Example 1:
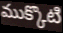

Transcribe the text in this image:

ముక్కొటి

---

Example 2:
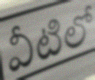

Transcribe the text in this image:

వీటిలో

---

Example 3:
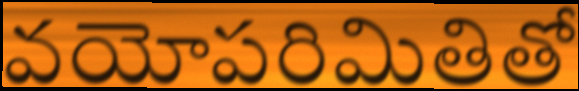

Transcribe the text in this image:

వయోపరిమితితో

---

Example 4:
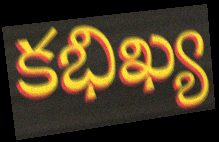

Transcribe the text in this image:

కభిఖ్య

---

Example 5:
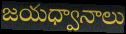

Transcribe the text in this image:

జయధ్వానాలు